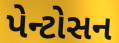
પેન્ટોસન